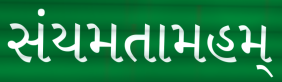
સંયમતામહમ્